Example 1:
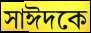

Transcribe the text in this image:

সাঈদকে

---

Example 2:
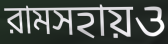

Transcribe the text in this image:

রামসহায়ও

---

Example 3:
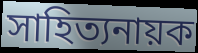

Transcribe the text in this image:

সাহিত্যনায়ক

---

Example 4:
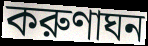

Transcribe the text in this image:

করুণাঘন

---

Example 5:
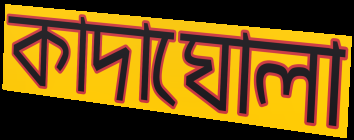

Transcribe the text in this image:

কাদাঘোলা